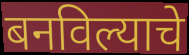
बनविल्याचे